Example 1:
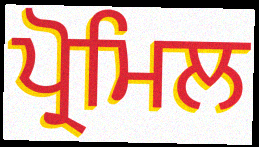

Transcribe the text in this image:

ਪ੍ਰੋਮਿਲ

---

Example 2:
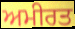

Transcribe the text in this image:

ਅਮੀਰਤ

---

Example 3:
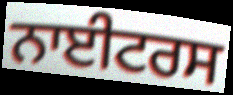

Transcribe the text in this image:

ਨਾਈਟਰਸ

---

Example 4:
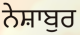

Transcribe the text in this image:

ਨੇਸ਼ਾਬੁਰ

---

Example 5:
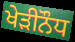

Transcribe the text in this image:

ਖੇੜੀਨੌਧ